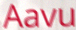
Aavu